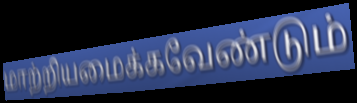
மாற்றியமைக்கவேண்டும்